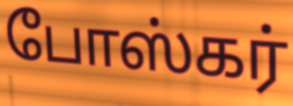
போஸ்கர்